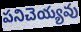
పనిచెయ్యవు